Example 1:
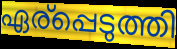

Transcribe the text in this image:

ഏര്പ്പെടുത്തി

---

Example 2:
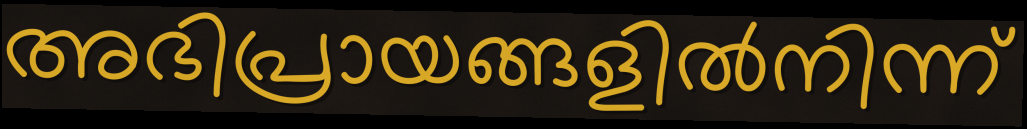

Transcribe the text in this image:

അഭിപ്രായങ്ങളിൽനിന്ന്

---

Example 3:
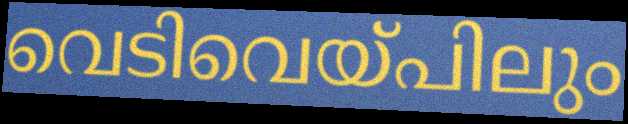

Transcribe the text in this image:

വെടിവെയ്പിലും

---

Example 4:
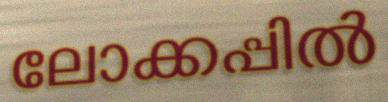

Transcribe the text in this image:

ലോക്കപ്പിൽ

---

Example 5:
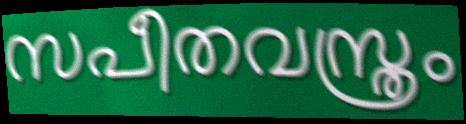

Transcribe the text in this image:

സപീതവസ്ത്രം